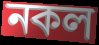
নকল